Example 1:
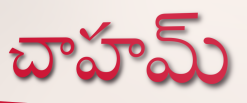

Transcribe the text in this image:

చాహమ్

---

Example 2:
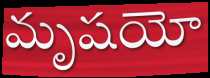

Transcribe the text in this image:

మృషయో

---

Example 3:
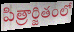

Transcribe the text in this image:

పిత్రార్జితంలో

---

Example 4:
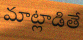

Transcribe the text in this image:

మాట్లాడితే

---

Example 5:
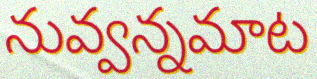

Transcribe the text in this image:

నువ్వన్నమాట